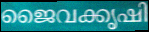
ജൈവക്കൃഷി